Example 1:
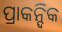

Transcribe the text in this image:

ପ୍ରାକନ୍ଦିକ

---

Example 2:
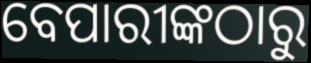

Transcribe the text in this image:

ବେପାରୀଙ୍କଠାରୁ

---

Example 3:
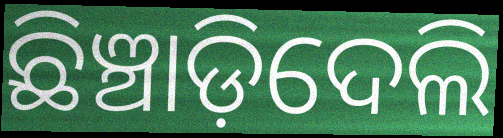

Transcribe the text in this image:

ଛିଞ୍ଚାଡ଼ିଦେଲି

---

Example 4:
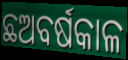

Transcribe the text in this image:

ଛଅବର୍ଷକାଳ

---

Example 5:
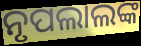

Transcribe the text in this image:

ନୃପଲାଲଙ୍କ